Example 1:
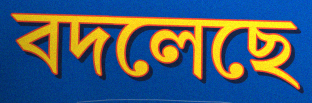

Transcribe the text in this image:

বদলেছে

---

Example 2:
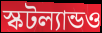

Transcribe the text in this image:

স্কটল্যান্ডও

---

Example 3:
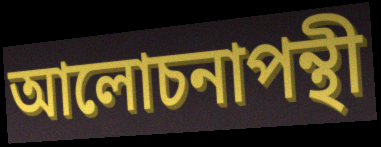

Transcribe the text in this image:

আলোচনাপন্থী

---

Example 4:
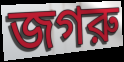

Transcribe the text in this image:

জগরু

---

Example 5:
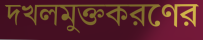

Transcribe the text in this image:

দখলমুক্তকরণের